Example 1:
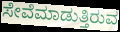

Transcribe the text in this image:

ಸೇವೆಮಾಡುತ್ತಿರುವ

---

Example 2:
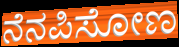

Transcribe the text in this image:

ನೆನಪಿಸೋಣ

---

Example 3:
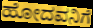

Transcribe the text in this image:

ಹೋದವನಿಗೆ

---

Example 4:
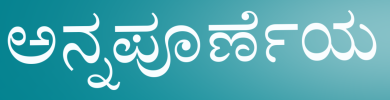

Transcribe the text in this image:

ಅನ್ನಪೂರ್ಣೆಯ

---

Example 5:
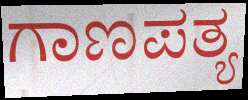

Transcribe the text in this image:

ಗಾಣಪತ್ಯ